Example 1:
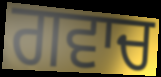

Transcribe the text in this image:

ਗਵਾਚ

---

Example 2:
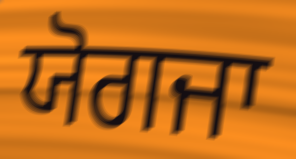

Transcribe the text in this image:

ਯੋਗਜਾ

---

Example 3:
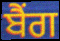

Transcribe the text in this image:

ਬੈਂਗ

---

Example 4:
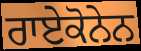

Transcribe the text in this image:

ਰਾਏਕੋਨੇਨ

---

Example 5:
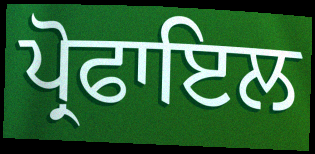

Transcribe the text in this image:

ਪ੍ਰੋਫਾਇਲ